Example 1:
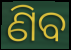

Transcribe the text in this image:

ଣିବ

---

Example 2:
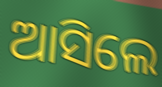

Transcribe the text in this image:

ଆସିଲେ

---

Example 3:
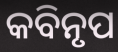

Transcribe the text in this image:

କବିନୃପ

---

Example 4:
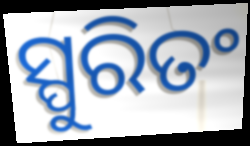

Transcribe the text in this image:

ସ୍ପୁରିତଂ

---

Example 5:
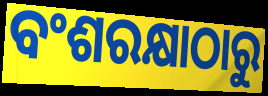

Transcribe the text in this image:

ବଂଶରକ୍ଷାଠାରୁ